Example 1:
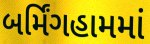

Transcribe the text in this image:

બર્મિંગહામમાં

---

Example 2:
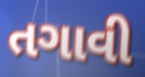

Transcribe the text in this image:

તગાવી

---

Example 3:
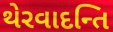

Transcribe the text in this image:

થેરવાદન્તિ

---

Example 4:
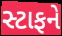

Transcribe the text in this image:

સ્ટાફને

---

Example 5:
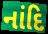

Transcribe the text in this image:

નાંદિ